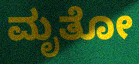
ಮೃತೋ